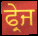
ਫ੍ਰੇਜ